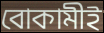
বোকামীই